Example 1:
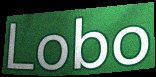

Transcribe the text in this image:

Lobo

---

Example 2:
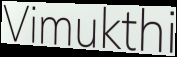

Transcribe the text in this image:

Vimukthi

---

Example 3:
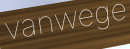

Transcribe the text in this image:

vanwege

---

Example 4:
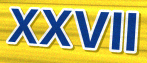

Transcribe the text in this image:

XXVII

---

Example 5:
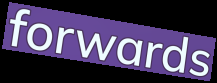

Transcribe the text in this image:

forwards